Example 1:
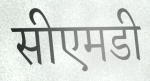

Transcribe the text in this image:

सीएमडी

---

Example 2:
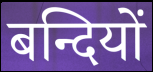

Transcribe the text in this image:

बन्दियों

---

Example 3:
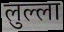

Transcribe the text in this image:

लुल्ला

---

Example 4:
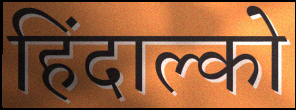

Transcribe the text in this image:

हिंदाल्को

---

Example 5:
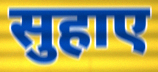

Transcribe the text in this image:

सुहाए